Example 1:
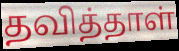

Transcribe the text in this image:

தவித்தாள்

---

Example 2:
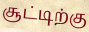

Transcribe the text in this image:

சூட்டிற்கு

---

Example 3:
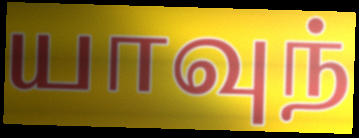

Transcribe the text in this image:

யாவுந்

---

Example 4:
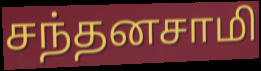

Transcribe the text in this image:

சந்தனசாமி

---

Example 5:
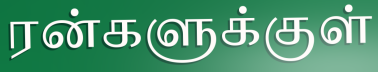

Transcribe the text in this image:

ரன்களுக்குள்